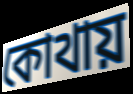
কোথায়